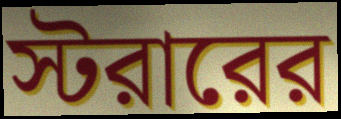
স্টরারের